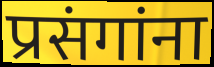
प्रसंगांना